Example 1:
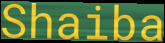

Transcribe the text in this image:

Shaiba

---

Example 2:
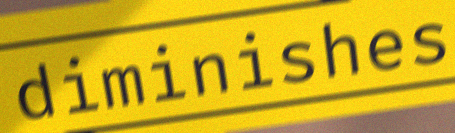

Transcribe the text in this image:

diminishes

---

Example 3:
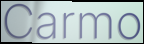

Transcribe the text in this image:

Carmo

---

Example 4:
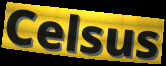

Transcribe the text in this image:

Celsus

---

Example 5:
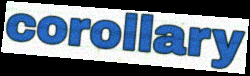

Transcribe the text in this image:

corollary